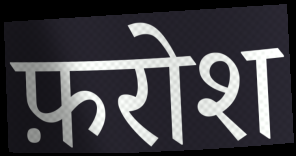
फ़रोश